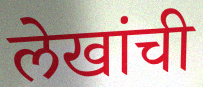
लेखांची